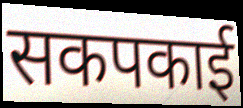
सकपकाई